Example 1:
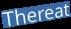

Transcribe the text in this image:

Thereat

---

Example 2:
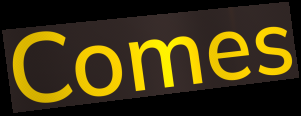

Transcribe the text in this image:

Comes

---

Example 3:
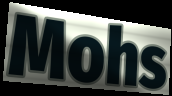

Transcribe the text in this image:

Mohs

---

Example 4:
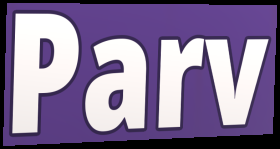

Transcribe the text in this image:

Parv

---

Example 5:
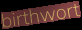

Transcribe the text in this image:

birthwort